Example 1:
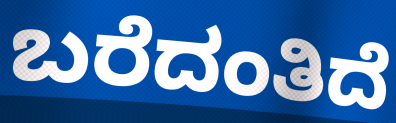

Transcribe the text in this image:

ಬರೆದಂತಿದೆ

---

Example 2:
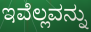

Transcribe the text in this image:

ಇವೆಲ್ಲವನ್ನು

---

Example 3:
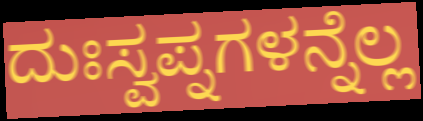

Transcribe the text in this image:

ದುಃಸ್ವಪ್ನಗಳನ್ನೆಲ್ಲ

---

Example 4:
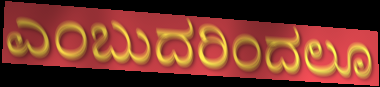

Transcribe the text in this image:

ಎಂಬುದರಿಂದಲೂ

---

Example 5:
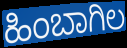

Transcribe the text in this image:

ಹಿಂಬಾಗಿಲ